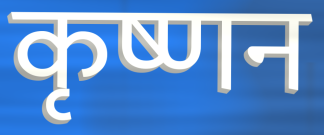
कृष्णन